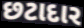
છટાદાર